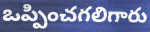
ఒప్పించగలిగారు